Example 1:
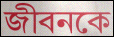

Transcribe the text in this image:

জীবনকে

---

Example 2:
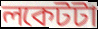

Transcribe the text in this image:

লকেটটা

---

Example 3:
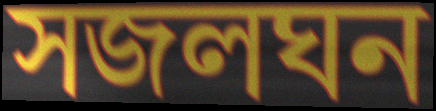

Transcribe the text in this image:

সজলঘন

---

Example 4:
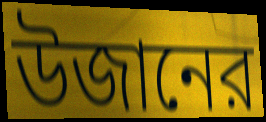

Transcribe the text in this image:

উজানের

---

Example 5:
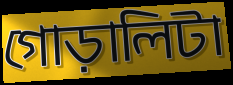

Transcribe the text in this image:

গোড়ালিটা